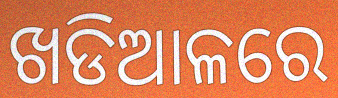
ଖଡିଆଳରେ